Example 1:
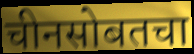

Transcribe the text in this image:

चीनसोबतचा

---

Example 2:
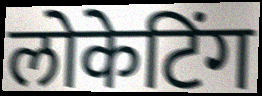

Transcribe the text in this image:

लोकेटिंग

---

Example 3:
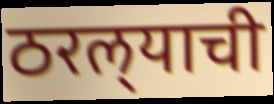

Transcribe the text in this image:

ठरल्याची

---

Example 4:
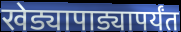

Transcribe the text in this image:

खेड्यापाड्यापर्यंत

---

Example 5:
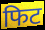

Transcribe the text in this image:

फिट